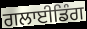
ਗਲਾਈਡਿੰਗ